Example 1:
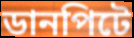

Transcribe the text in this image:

ডানপিটে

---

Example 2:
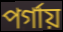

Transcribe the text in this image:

পর্গায়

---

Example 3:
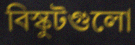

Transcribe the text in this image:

বিস্কুটগুলো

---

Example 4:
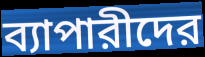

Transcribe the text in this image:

ব্যাপারীদের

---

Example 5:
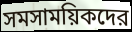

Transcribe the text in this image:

সমসাময়িকদের